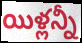
యిళ్లన్నీ